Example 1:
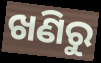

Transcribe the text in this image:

ଖଣିରୁ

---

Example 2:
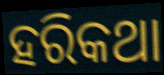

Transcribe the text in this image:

ହରିକଥା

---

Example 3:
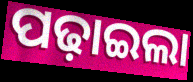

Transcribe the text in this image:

ପଢ଼ାଇଲା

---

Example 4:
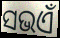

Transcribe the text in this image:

ସଭଏଁ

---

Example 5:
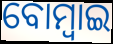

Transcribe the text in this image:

ବୋମ୍ୱାଇ